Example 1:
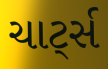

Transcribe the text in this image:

ચાર્ટ્સ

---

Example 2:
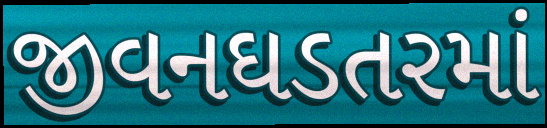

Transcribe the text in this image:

જીવનઘડતરમાં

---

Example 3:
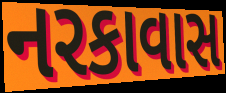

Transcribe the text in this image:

નરકાવાસ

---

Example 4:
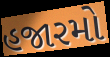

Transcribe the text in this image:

હજારમો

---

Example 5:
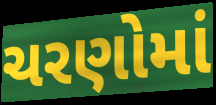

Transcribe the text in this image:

ચરણોમાં